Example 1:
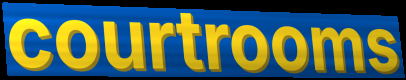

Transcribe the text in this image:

courtrooms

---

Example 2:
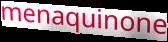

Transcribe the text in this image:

menaquinone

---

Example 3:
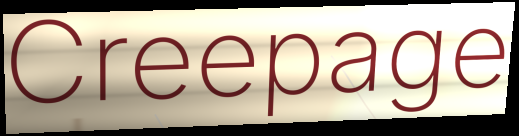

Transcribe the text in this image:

Creepage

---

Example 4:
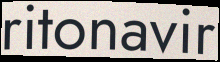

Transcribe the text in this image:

ritonavir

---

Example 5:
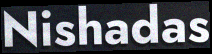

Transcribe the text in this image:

Nishadas